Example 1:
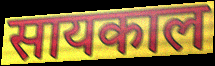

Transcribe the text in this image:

सायकाल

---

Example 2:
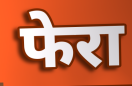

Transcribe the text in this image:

फेरा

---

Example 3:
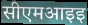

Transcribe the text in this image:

सीएमआइइ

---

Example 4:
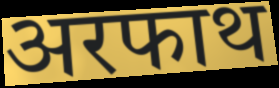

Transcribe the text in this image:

अरफाथ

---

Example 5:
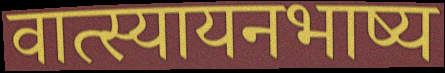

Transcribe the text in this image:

वात्स्यायनभाष्य